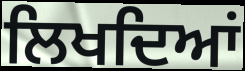
ਲਿਖਦਿਆਂ